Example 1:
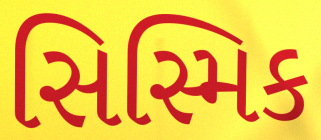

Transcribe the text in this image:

સિસ્મિક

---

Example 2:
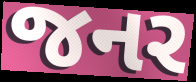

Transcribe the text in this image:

જનર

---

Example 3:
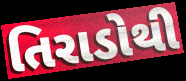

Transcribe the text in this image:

તિરાડોથી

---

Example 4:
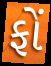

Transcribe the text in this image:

ફોં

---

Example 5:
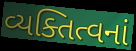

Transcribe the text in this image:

વ્યક્તિત્વનાં